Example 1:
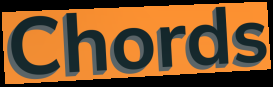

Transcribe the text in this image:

Chords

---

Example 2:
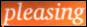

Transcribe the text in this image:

pleasing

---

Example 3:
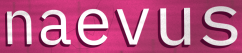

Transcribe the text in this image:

naevus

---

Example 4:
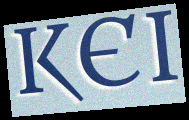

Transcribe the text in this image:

KEI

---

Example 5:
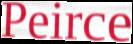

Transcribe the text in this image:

Peirce